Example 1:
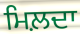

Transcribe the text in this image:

ਮਿਲ਼ਦਾ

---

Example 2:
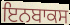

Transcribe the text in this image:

ਇਨਬਾਕਸ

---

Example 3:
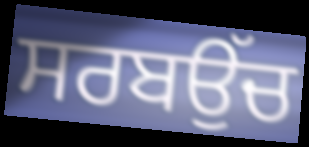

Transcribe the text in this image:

ਸਰਬਉੱਚ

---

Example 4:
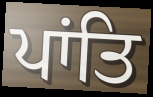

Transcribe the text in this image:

ਪਾਂਤਿ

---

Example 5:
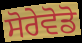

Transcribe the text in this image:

ਸੋਰੇਵੋਡੋ